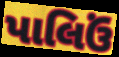
પાલિઉં